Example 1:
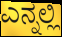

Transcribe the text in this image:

ಎನ್ನಲ್ಲಿ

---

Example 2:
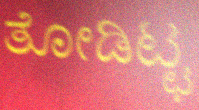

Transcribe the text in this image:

ತೋಡಿಟ್ಟ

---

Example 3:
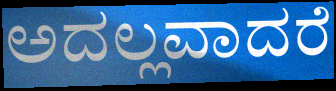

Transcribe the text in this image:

ಅದಲ್ಲವಾದರೆ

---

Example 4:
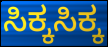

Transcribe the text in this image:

ಸಿಕ್ಕಸಿಕ್ಕ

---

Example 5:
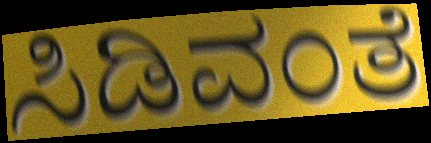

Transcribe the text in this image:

ಸಿಡಿವಂತೆ